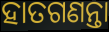
ହାତଗଣନ୍ତା